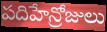
పదిహేన్రోజులు